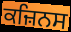
ਕਜ਼ਿਨਸ